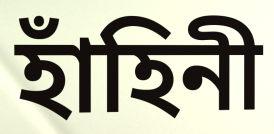
হাঁহিনী